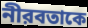
নীরবতাকে